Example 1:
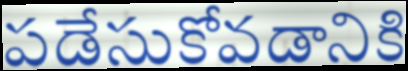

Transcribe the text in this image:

పడేసుకోవడానికి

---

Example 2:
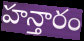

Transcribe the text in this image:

హన్తారం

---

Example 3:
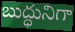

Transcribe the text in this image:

బుద్ధునిగా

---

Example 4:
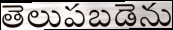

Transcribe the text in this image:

తెలుపబడెను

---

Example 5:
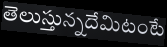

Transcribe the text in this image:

తెలుస్తున్నదేమిటంటే